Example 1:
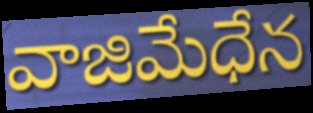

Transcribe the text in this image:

వాజిమేధేన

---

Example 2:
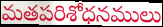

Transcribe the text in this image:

మతపరిశోధనములు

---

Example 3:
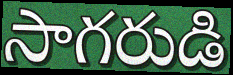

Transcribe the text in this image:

సాగరుడి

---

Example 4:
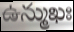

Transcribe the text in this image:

ఉన్ముఖః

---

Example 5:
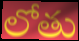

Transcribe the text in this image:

లోతు